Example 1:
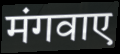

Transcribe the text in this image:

मंगवाए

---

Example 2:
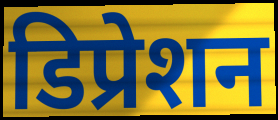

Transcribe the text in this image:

डिप्रेशन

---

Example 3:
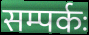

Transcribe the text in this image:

सम्पर्कः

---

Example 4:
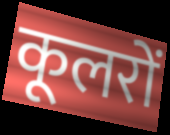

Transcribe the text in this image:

कूलरों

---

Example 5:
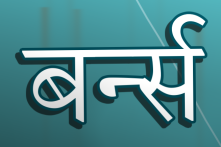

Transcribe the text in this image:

बर्न्स